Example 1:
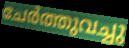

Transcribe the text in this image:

ചേർത്തുവച്ചു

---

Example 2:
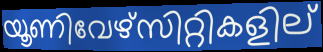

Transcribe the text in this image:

യൂണിവേഴ്സിറ്റികളില്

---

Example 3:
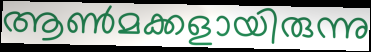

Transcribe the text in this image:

ആൺമക്കളായിരുന്നു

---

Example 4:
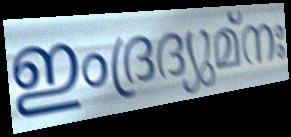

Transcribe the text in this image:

ഇംദ്രദ്യുമ്നഃ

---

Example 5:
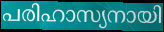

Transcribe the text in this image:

പരിഹാസ്യനായി